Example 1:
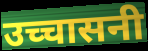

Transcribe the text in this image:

उच्चासनी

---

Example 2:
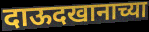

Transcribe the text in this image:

दाऊदखानाच्या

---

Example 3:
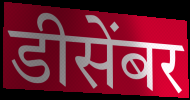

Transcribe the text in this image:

डीसेंबर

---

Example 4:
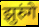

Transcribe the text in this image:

झुरुंगे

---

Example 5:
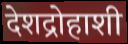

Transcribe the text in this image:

देशद्रोहाशी